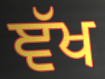
ਞੱਖ